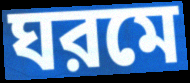
ঘরমে